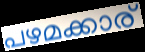
പഴമക്കാര്